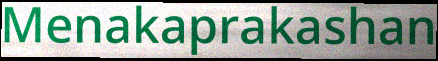
Menakaprakashan